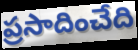
ప్రసాదించేది